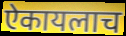
ऐकायलाच